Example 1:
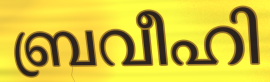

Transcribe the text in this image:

ബ്രവീഹി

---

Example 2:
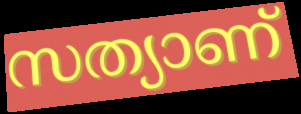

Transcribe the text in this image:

സത്യാണ്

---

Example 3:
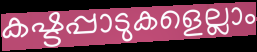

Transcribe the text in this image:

കഷ്ടപ്പാടുകളെല്ലാം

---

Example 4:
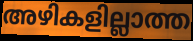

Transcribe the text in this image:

അഴികളില്ലാത്ത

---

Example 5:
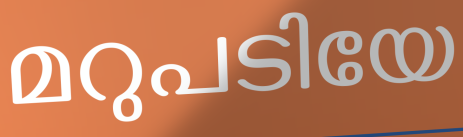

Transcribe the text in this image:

മറുപടിയേ